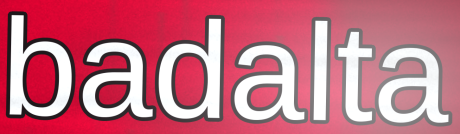
badalta